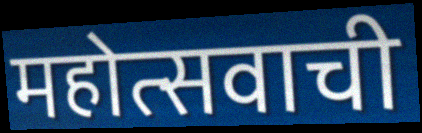
महोत्सवाची